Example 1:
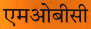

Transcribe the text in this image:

एमओबीसी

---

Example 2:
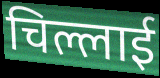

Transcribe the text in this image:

चिल्लाई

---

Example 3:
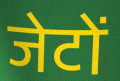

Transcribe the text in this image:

जेटों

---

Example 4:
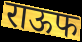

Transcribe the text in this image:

राऊफ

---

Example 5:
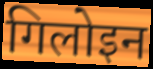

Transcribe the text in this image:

गिलोइन